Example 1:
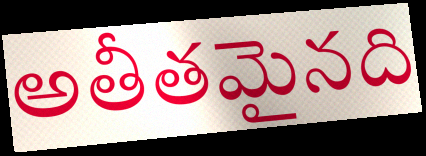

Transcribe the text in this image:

అతీతమైనది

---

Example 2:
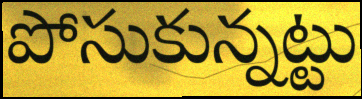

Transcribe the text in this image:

పోసుకున్నట్టు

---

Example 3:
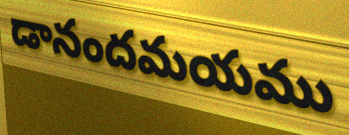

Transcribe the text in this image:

డానందమయము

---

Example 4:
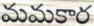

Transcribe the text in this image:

మమకార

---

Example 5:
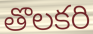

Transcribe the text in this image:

తొలకరి